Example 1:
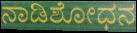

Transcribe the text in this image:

ನಾಡಿಶೋಧನ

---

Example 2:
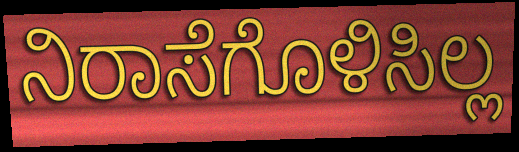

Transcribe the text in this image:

ನಿರಾಸೆಗೊಳಿಸಿಲ್ಲ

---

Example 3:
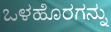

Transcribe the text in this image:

ಒಳಹೊರಗನ್ನು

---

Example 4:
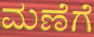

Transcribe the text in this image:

ಮಣೆಗೆ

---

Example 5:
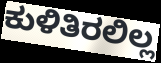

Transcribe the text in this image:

ಕುಳಿತಿರಲಿಲ್ಲ